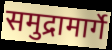
समुद्रामार्गे